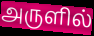
அருளில்